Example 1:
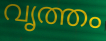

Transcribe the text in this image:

വൃത്തം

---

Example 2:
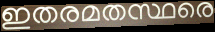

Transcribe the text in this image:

ഇതരമതസ്ഥരെ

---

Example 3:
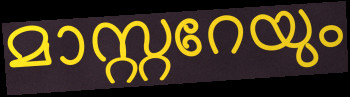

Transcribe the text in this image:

മാസ്റ്ററേയും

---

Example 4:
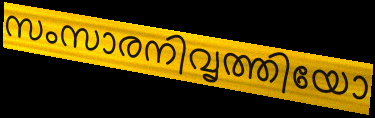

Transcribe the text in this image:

സംസാരനിവൃത്തിയോ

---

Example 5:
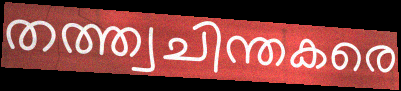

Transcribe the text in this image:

തത്ത്വചിന്തകരെ